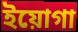
ইয়োগা